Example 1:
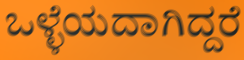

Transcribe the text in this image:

ಒಳ್ಳೆಯದಾಗಿದ್ದರೆ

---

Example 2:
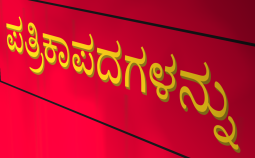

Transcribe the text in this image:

ಪತ್ರಿಕಾಪದಗಳನ್ನು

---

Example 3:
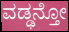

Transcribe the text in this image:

ವಡ್ಢನ್ತೋ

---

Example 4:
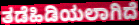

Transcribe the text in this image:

ತಡೆಹಿಡಿಯಲಾಗಿದೆ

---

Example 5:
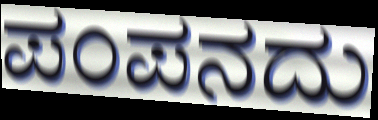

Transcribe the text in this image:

ಪಂಪನದು